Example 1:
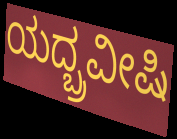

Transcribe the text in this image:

ಯದ್ಬ್ರವೀಷಿ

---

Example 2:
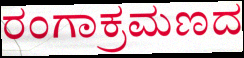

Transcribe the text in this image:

ರಂಗಾಕ್ರಮಣದ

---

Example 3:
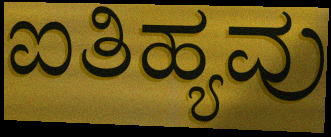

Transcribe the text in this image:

ಐತಿಹ್ಯವು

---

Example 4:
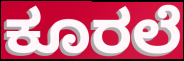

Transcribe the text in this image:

ಕೂರಲೆ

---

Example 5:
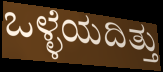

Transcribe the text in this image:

ಒಳ್ಳೆಯದಿತ್ತು